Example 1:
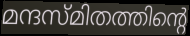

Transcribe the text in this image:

മന്ദസ്മിതത്തിന്റെ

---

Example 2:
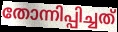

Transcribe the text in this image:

തോന്നിപ്പിച്ചത്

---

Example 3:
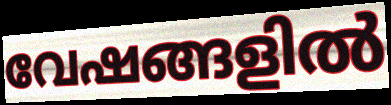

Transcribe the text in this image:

വേഷങ്ങളിൽ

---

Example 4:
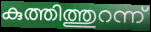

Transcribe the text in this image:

കുത്തിത്തുറന്ന്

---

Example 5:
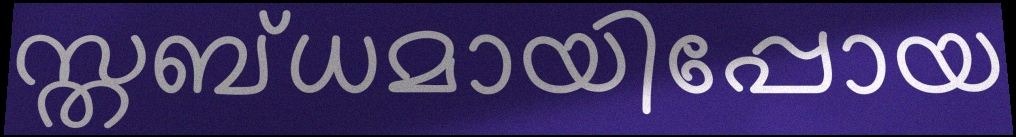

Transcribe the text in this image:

സ്തബ്ധമായിപ്പോയ